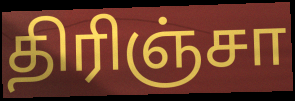
திரிஞ்சா